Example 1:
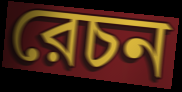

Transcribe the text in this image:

রেচন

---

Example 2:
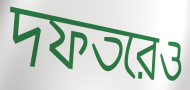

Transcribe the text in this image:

দফতরেও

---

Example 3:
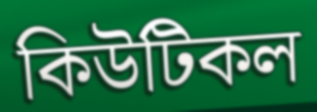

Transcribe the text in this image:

কিউটিকল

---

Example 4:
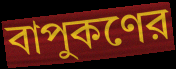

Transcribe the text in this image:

বাপুকণের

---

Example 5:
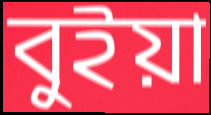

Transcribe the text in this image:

বুইয়া